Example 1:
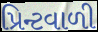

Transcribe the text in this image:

પ્રિન્ટવાળી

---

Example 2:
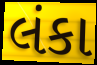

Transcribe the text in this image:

લંકા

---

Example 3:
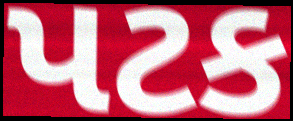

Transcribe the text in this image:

પટક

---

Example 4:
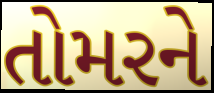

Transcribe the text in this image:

તોમરને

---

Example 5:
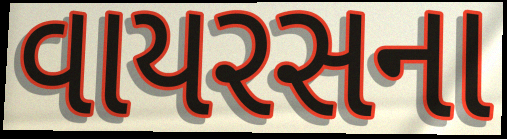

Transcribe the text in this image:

વાયરસના